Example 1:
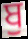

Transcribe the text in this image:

ਬੁ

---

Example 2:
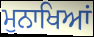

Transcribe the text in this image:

ਮੁਨਾਖਿਆਂ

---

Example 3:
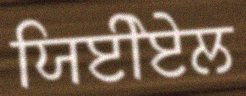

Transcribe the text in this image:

ਯਿਈੇਏਲ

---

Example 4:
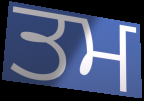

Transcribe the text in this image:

ਤਮ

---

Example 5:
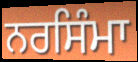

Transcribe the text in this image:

ਨਰਸਿੰਮਾ